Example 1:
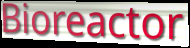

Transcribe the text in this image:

Bioreactor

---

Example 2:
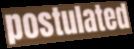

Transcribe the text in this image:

postulated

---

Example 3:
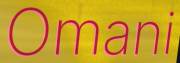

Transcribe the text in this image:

Omani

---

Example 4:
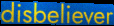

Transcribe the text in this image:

disbeliever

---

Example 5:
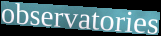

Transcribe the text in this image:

observatories